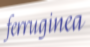
ferruginea